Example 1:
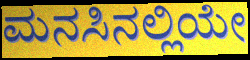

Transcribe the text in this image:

ಮನಸಿನಲ್ಲಿಯೇ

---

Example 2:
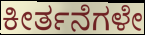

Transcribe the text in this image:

ಕೀರ್ತನೆಗಳೇ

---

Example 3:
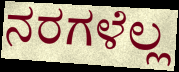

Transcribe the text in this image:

ನರಗಳೆಲ್ಲ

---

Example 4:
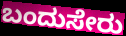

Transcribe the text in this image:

ಬಂದುಸೇರು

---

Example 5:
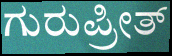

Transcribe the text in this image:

ಗುರುಪ್ರೀತ್